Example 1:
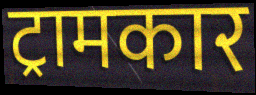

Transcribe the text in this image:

ट्रामकार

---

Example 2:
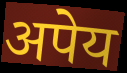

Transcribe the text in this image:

अपेय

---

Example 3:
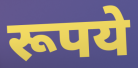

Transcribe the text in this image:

रूपये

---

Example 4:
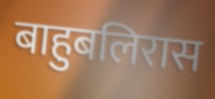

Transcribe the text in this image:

बाहुबलिरास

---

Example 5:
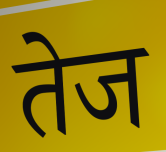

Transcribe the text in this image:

तेज